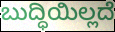
ಬುದ್ಧಿಯಿಲ್ಲದೆ